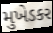
મુખેડકર